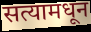
सत्यामधून